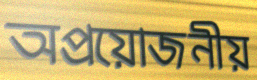
অপ্রয়োজনীয়